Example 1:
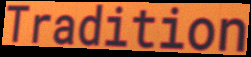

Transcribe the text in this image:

Tradition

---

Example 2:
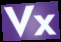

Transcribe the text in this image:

Vx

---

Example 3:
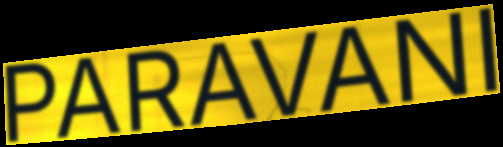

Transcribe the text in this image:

PARAVANI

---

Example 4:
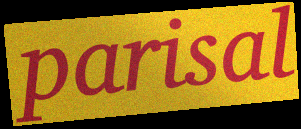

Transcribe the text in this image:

parisal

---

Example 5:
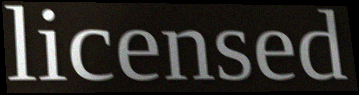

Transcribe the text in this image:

licensed